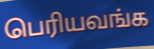
பெரியவங்க